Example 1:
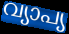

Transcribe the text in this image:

വ്യാപ്യ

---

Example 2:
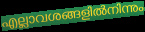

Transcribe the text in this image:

എല്ലാവശങ്ങളിൽനിന്നും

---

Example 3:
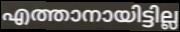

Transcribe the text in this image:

എത്താനായിട്ടില്ല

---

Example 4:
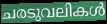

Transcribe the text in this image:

ചരടുവലികൾ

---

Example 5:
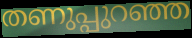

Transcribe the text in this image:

തണുപ്പുറഞ്ഞ